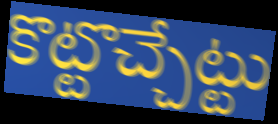
కొట్టొచ్చేట్టు